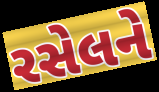
રસેલને